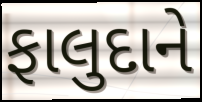
ફાલુદાને